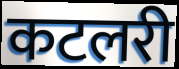
कटलरी